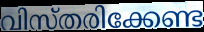
വിസ്തരിക്കേണ്ട